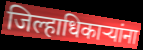
जिल्हाधिकाऱ्यांना